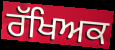
ਰੱਖਿਅਕ